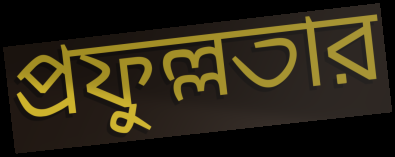
প্রফুল্লতার